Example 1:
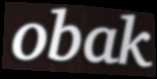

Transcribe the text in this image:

obak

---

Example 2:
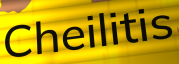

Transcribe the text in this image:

Cheilitis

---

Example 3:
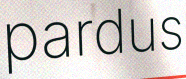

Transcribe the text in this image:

pardus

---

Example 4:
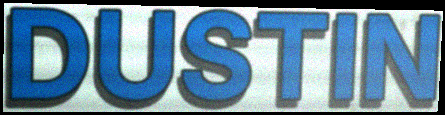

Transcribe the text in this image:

DUSTIN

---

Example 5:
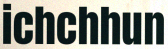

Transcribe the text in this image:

ichchhun